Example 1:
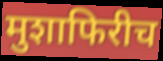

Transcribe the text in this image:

मुशाफिरीच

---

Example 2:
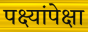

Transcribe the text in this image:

पक्ष्यांपेक्षा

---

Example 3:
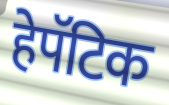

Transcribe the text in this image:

हेपॅटिक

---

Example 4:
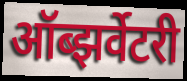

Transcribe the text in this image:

ऑब्झर्वेटरी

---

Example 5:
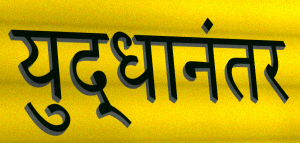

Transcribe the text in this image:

युद्धानंतर